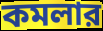
কমলার